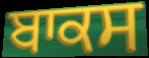
ਬਾਕਸ